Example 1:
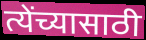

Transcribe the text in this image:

त्येंच्यासाठी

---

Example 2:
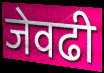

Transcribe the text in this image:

जेवढी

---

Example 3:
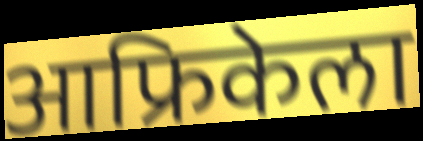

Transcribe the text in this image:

आफ्रिकेला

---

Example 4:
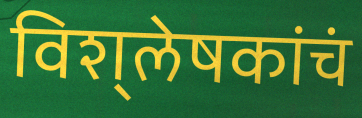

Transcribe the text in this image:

विश्लेषकांचं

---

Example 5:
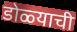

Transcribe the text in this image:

डोळ्याची